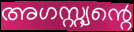
അഗസ്റ്റ്യന്റെ